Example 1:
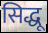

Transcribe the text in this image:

सिद्धू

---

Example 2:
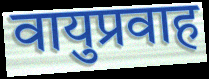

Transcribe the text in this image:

वायुप्रवाह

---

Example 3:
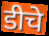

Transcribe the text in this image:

डीचे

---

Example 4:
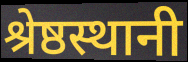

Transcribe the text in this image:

श्रेष्ठस्थानी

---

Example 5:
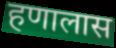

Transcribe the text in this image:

हणालास